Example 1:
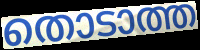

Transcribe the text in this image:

തൊടാത്ത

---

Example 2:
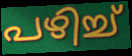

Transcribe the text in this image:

പഴിച്ച്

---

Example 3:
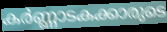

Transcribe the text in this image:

കർണ്ണാടകക്കാരുടെ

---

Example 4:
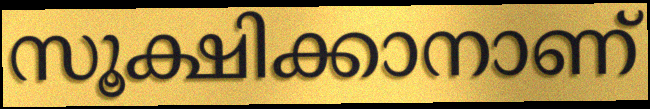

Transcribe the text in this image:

സൂക്ഷിക്കാനാണ്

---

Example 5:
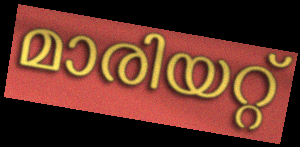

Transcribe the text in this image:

മാരിയറ്റ്